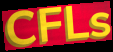
CFLs